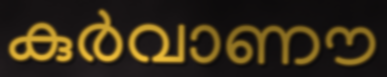
കുർവാണൗ